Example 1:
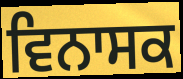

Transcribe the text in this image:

ਵਿਨਾਸਕ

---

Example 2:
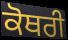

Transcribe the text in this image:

ਕੋਥਰੀ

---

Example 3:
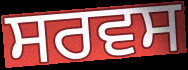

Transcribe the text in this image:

ਸਰਵਸ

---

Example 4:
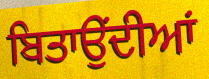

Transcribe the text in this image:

ਬਿਤਾਉਂਦੀਆਂ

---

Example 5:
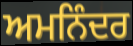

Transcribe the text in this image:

ਅਮਨਿੰਦਰ